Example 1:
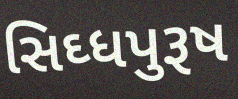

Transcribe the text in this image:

સિઘ્ધપુરૂષ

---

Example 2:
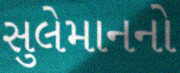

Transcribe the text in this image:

સુલેમાનનો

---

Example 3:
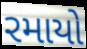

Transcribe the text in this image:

રમાયો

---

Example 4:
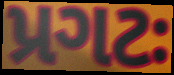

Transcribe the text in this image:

પ્રગટઃ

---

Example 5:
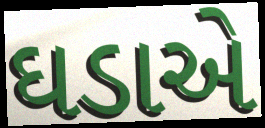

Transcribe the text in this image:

ઘડાએ